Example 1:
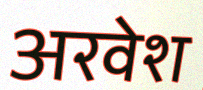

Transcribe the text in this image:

अरवेश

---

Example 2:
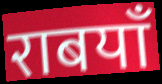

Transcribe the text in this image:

राबयाँ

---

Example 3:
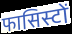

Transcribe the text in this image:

फासिस्टों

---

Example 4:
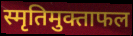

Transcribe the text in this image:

स्मृतिमुक्ताफल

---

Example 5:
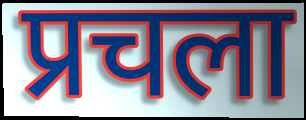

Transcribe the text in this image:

प्रचला